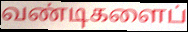
வண்டிகளைப்